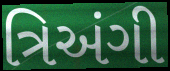
ત્રિઅંગી